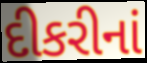
દીકરીનાં